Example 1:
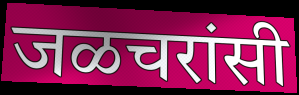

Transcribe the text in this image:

जळचरांसी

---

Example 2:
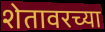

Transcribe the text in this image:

शेतावरच्या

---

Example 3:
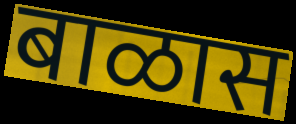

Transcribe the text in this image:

बाळास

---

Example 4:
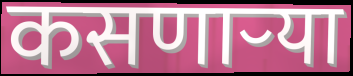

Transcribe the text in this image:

कसणाऱ्या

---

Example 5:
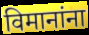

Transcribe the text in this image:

विमानांना